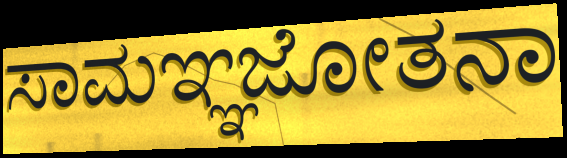
ಸಾಮಞ್ಞಜೋತನಾ